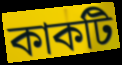
কাকটি